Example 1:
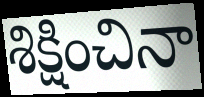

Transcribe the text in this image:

శిక్షించినా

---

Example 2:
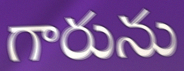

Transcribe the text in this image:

గారును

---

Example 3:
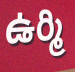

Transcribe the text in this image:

ఉర్మి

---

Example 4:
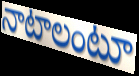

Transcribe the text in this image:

నాటాలంటూ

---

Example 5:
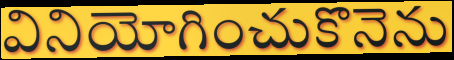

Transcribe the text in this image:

వినియోగించుకొనెను